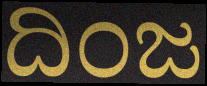
ದಿಂಜ